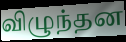
விழுந்தன